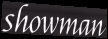
showman